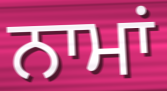
ਨਾਮਾਂ